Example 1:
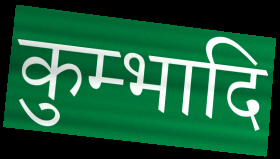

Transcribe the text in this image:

कुम्भादि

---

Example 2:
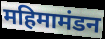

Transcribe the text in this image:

महिमामंडन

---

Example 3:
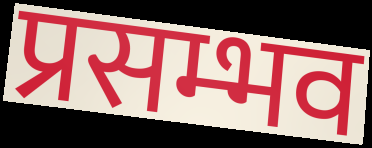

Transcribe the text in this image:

प्रसम्भव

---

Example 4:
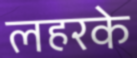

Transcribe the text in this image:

लहरके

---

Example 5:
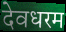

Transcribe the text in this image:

देवधरम